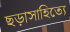
ছড়াসাহিত্যে